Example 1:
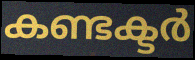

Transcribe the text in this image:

കണ്ടക്ടർ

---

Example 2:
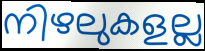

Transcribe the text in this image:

നിഴലുകളല്ല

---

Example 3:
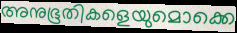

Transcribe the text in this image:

അനുഭൂതികളെയുമൊക്കെ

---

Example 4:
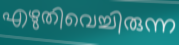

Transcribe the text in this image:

എഴുതിവെച്ചിരുന്ന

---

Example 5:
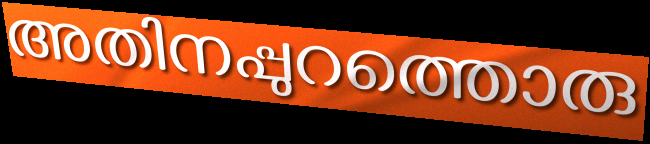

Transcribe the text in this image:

അതിനപ്പുറത്തൊരു